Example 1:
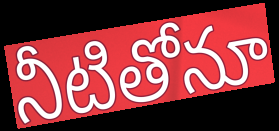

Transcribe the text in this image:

నీటితోనూ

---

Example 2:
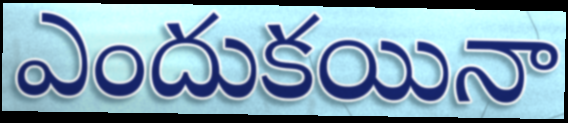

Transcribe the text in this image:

ఎందుకయినా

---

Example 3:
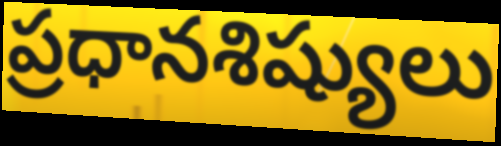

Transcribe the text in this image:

ప్రధానశిష్యులు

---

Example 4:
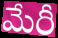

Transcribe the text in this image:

మేరీ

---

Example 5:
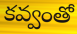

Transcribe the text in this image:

కవ్వంతో